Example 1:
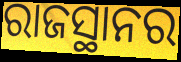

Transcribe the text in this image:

ରାଜସ୍ଥାନର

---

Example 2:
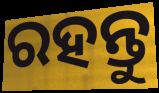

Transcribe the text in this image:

ରହନ୍ତୁ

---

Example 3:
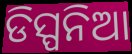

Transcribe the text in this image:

ଡିସ୍ପନିଆ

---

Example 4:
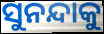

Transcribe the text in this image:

ସୁନନ୍ଦାକୁ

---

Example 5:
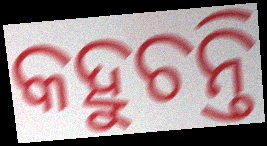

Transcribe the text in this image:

କହୁଚନ୍ତି